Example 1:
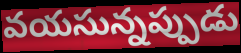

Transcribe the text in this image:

వయసున్నప్పుడు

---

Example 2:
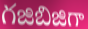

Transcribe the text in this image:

గజిబిజిగా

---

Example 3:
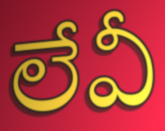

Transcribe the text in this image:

లేవీ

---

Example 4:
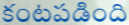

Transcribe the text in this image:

కంటపడింది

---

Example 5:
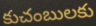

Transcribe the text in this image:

కుచంబులకు